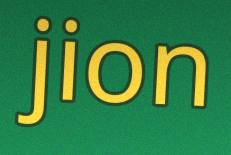
jion